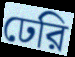
ঢেরি